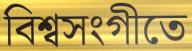
বিশ্বসংগীতে